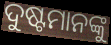
ଦୁଷ୍ଟମାନଙ୍କୁ